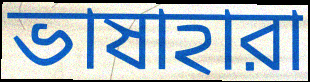
ভাষাহারা